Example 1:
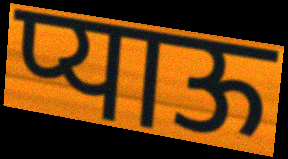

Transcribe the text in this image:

प्याऊ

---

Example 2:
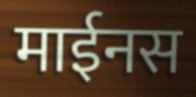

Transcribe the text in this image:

माईनस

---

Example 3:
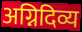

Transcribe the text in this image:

अग्निदिव्य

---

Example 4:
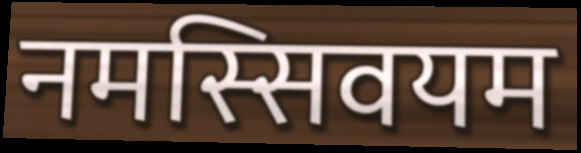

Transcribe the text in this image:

नमस्सिवयम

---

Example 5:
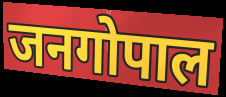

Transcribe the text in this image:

जनगोपाल